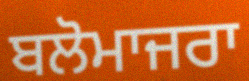
ਬਲੋਮਾਜਰਾ